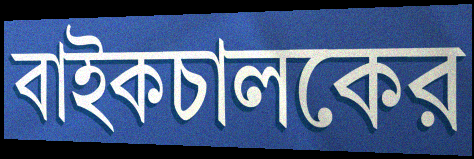
বাইকচালকের